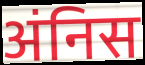
अंनिस